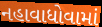
નહાવાધોવામાં